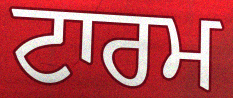
ਟਾਰਮ